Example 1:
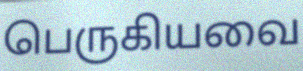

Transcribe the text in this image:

பெருகியவை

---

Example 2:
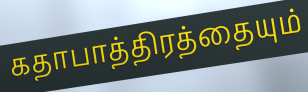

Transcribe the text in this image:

கதாபாத்திரத்தையும்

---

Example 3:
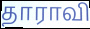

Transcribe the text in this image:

தாராவி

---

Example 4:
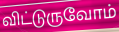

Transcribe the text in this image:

விட்டுருவோம்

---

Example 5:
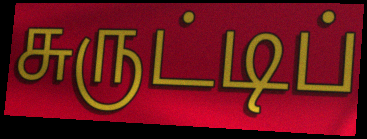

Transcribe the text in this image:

சுருட்டிப்